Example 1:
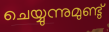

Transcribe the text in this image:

ചെയ്യുന്നുമുണ്ടു്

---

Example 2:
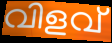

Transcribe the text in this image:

വിളവ്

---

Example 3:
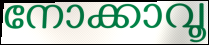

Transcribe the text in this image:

നോക്കാവൂ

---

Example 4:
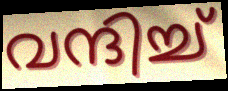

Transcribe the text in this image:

വന്ദിച്ച്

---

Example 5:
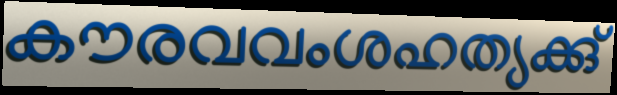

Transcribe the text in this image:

കൗരവവംശഹത്യക്കു്